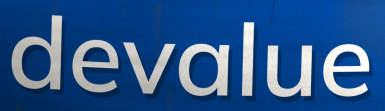
devalue